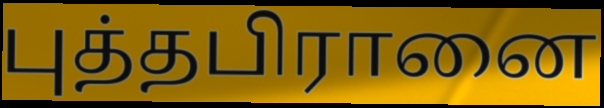
புத்தபிரானை